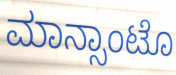
ಮಾನ್ಸಾಂಟೊ